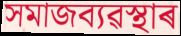
সমাজব্যৱস্থাৰ